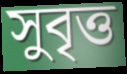
সুবৃত্ত